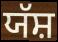
ਯੱਸ਼